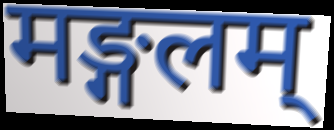
मङ्गलम्